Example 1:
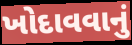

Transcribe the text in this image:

ખોદાવવાનું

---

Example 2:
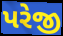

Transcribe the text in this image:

પરેજી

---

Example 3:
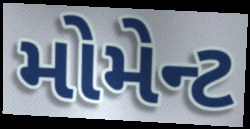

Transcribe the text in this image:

મોમેન્ટ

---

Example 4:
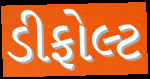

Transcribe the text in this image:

ડીફોલ્ટ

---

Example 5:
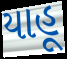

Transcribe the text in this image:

યાહૂ